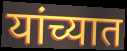
यांच्यात